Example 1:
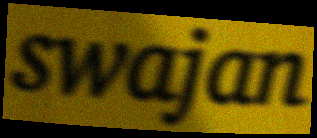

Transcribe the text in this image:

swajan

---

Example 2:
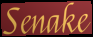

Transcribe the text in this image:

Senake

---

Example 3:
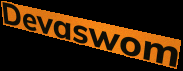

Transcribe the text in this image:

Devaswom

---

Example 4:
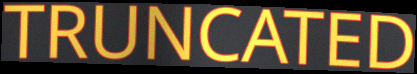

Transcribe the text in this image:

TRUNCATED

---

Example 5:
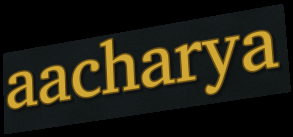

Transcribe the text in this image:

aacharya